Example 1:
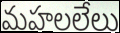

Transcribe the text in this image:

మహలలేలు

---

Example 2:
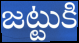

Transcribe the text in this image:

జట్టుకి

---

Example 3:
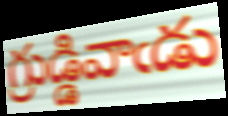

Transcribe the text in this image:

గ్రుడ్డివాఁడు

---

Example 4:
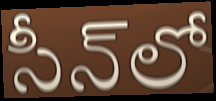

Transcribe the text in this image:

సీన్‌లో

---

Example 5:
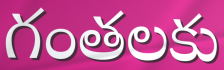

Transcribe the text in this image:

గంతలకు